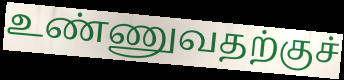
உண்ணுவதற்குச்